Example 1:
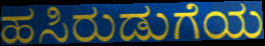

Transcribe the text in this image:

ಹಸಿರುಡುಗೆಯ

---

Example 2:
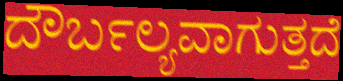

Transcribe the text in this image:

ದೌರ್ಬಲ್ಯವಾಗುತ್ತದೆ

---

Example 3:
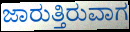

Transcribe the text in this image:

ಜಾರುತ್ತಿರುವಾಗ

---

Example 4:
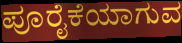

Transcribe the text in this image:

ಪೂರೈಕೆಯಾಗುವ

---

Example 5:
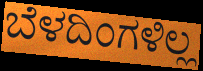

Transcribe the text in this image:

ಬೆಳದಿಂಗಳಿಲ್ಲ